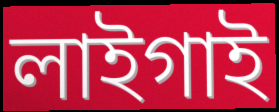
লাইগাই